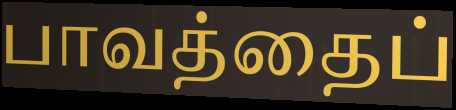
பாவத்தைப்